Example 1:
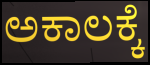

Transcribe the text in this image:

ಅಕಾಲಕ್ಕೆ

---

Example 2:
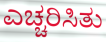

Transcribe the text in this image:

ಎಚ್ಚರಿಸಿತು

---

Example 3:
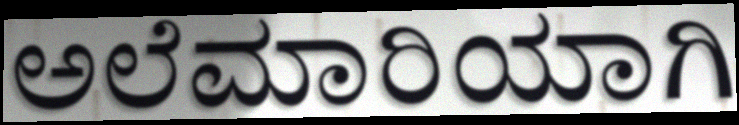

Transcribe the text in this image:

ಅಲೆಮಾರಿಯಾಗಿ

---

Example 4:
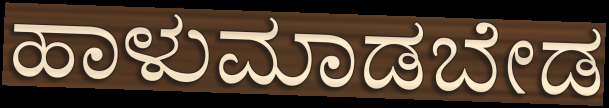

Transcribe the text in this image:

ಹಾಳುಮಾಡಬೇಡ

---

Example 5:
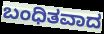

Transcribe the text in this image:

ಬಂಧಿತವಾದ